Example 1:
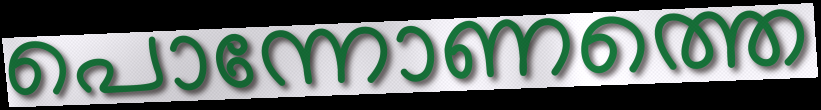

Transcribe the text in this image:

പൊന്നോണത്തെ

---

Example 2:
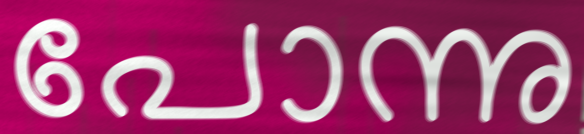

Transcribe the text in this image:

പോന്നു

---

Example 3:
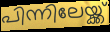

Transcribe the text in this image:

പിന്നിലേയ്ക്ക്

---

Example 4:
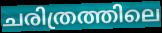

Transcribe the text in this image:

ചരിത്രത്തിലെ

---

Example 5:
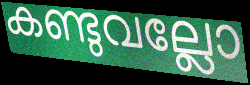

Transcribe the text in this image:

കണ്ടുവല്ലോ